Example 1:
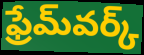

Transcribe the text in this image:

ఫ్రేమ్‌వర్క్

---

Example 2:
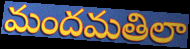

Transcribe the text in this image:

మందమతిలా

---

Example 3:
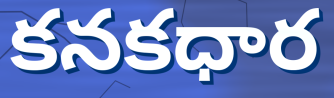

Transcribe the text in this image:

కనకధార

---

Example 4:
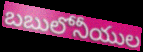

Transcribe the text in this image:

బబులోనీయుల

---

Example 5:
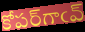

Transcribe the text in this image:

కోపర్‌గాఁవ్